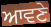
ਆਵਣੇ